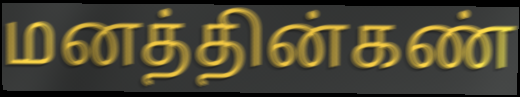
மனத்தின்கண்